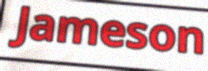
Jameson